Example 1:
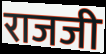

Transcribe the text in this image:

राजजी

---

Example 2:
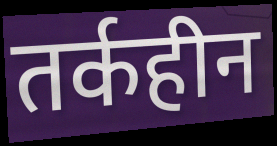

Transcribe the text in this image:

तर्कहीन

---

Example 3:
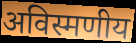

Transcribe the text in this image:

अविस्मणीय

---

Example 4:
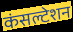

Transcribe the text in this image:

कंसल्टेशन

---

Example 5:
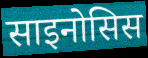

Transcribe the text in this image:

साइनोसिस